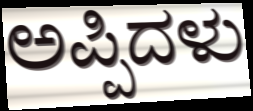
ಅಪ್ಪಿದಳು